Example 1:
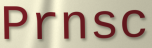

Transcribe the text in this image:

Prnsc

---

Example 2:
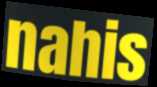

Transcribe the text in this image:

nahis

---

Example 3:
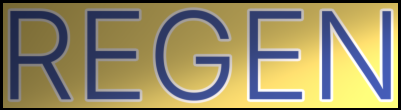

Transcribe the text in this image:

REGEN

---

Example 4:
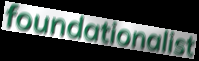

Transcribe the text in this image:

foundationalist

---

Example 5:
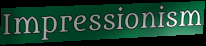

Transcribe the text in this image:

Impressionism